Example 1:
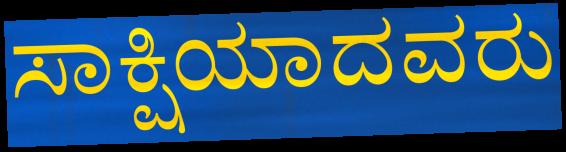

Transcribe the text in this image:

ಸಾಕ್ಷಿಯಾದವರು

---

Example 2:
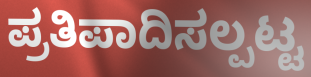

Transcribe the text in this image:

ಪ್ರತಿಪಾದಿಸಲ್ಪಟ್ಟ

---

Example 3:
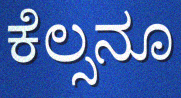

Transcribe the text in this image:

ಕೆಲ್ಸನೂ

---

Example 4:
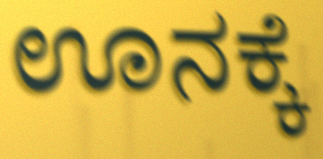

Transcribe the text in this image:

ಊನಕ್ಕೆ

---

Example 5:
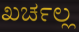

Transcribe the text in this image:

ಖರ್ಚಲ್ಲ